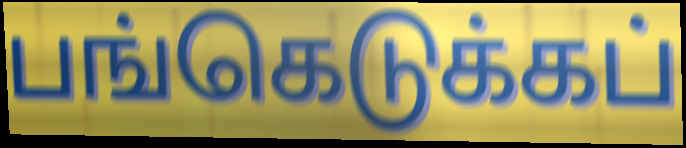
பங்கெடுக்கப்